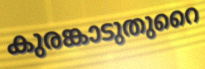
കുരങ്കാടുതുറൈ